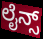
ಲೈನ್ಸ್